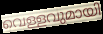
വെള്ളവുമായി